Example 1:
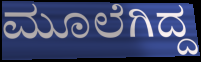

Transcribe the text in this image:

ಮೂಲೆಗಿದ್ದ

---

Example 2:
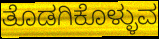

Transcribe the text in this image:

ತೊಡಗಿಕೊಳ್ಳುವ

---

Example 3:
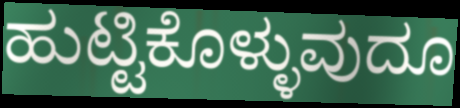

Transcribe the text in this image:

ಹುಟ್ಟಿಕೊಳ್ಳುವುದೂ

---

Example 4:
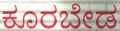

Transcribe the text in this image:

ಕೂರಬೇಡ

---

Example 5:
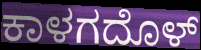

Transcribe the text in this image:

ಕಾಳಗದೊಳ್